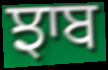
ਝਾਬ